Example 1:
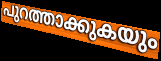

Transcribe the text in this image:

പുറത്താക്കുകയും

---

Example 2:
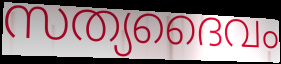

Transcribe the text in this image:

സത്യദൈവം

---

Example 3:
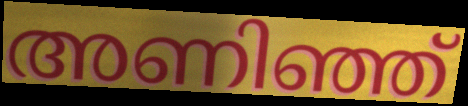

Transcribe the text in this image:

അണിഞ്ഞ്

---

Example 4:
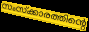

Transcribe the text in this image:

സംസ്‌ക്കാരത്തിന്റെ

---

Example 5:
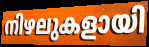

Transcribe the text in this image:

നിഴലുകളായി